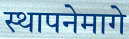
स्थापनेमागे